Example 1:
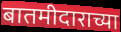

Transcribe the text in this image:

बातमीदाराच्या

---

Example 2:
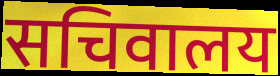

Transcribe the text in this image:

सचिवालय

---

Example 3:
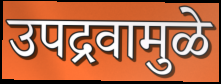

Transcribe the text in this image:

उपद्रवामुळे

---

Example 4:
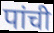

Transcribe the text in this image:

पांची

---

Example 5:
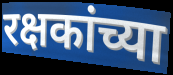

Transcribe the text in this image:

रक्षकांच्या